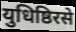
युधिष्ठिरसे